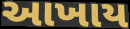
આખાય